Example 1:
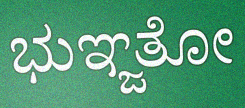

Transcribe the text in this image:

ಭುಞ್ಜತೋ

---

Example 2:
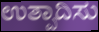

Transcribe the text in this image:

ಉತ್ಪಾದಿಸು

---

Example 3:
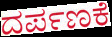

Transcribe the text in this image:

ದರ್ಪಣಕೆ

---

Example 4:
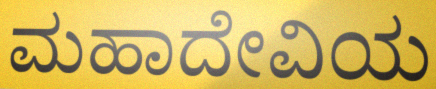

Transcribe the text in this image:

ಮಹಾದೇವಿಯ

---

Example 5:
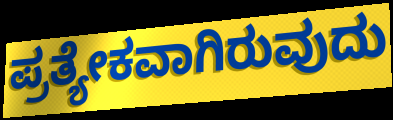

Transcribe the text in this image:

ಪ್ರತ್ಯೇಕವಾಗಿರುವುದು